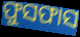
ଫୁସଫାସ